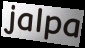
jalpa